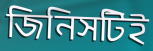
জিনিসটিই